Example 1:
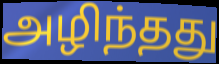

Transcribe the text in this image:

அழிந்தது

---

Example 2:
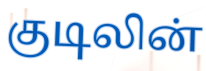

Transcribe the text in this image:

குடிலின்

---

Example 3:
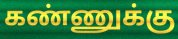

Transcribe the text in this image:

கண்ணுக்கு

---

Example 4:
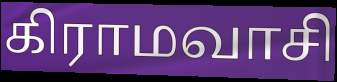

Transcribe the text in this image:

கிராமவாசி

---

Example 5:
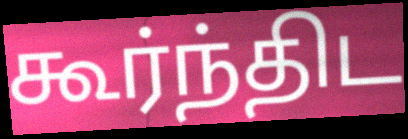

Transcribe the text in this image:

கூர்ந்திட